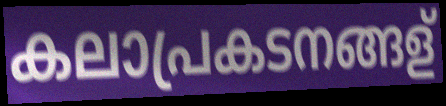
കലാപ്രകടനങ്ങള്